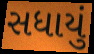
સધાયું